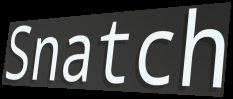
Snatch